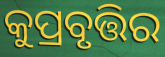
କୁପ୍ରବୃତ୍ତିର